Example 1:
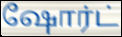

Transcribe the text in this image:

ஷோர்ட்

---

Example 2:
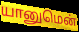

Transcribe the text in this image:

யானுமென்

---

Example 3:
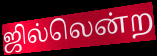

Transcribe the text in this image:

ஜில்லென்ற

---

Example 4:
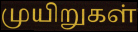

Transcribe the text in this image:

முயிறுகள்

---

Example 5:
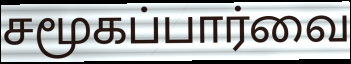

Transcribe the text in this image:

சமூகப்பார்வை